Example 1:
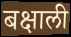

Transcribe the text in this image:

बक्षाली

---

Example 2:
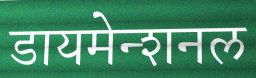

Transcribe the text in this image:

डायमेन्शनल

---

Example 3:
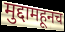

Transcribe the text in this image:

मुद्दामहूनच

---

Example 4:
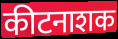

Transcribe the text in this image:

कीटनाशक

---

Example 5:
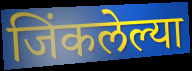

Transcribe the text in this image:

जिंकलेल्या